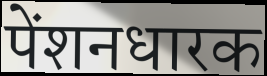
पेंशनधारक